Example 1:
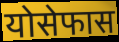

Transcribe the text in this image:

योसेफास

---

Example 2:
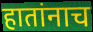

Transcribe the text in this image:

हातांनाच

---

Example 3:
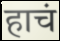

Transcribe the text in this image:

हाचं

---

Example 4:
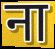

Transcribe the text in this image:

ना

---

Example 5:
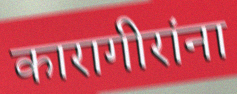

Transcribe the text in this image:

कारागीरांना